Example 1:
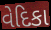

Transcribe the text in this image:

વેદિકા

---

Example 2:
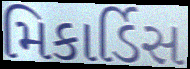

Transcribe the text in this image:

મિકાર્ડિસ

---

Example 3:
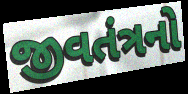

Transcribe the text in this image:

જીવતંત્રનો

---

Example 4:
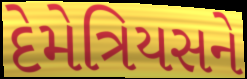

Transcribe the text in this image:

દેમેત્રિયસને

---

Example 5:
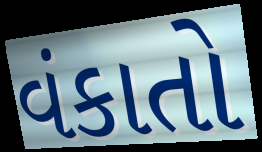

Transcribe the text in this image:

વંકાતો